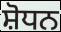
ਸ਼ੋਧਨ